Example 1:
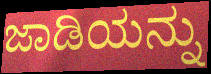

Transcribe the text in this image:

ಜಾಡಿಯನ್ನು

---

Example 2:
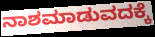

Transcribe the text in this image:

ನಾಶಮಾಡುವದಕ್ಕೆ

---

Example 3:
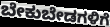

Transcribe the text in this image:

ಬೇಕುಬೇಡಗಳಿಗೆ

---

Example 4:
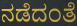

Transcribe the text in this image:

ನಡೆದಂತೆ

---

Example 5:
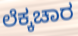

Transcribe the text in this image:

ಲೆಕ್ಕಚಾರ